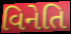
વિનેતિ